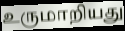
உருமாறியது